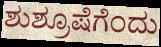
ಶುಶ್ರೂಷೆಗೆಂದು